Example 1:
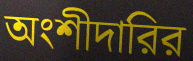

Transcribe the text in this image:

অংশীদারির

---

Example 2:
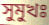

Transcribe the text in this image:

সুমুখঃ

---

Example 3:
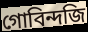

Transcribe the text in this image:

গোবিন্দজি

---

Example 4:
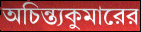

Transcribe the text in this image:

অচিন্ত্যকুমারের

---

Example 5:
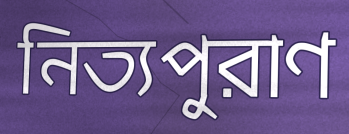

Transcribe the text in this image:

নিত্যপুরাণ